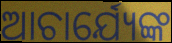
ଆଚାର୍ଯ୍ୟେଙ୍କ